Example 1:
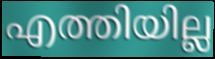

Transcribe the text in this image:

എത്തിയില്ല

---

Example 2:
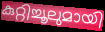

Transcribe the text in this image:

കുറ്റിച്ചൂലുമായി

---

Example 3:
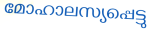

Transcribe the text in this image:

മോഹാലസ്യപ്പെട്ടു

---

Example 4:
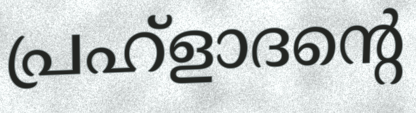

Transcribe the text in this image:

പ്രഹ്ളാദന്റെ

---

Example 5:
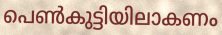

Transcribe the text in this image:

പെൺകുട്ടിയിലാകണം